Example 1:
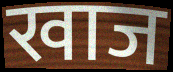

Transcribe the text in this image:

खाज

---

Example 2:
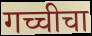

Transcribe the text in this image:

गच्चीचा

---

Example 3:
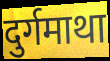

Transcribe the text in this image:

दुर्गमाथा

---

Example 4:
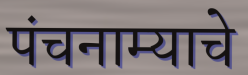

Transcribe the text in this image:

पंचनाम्याचे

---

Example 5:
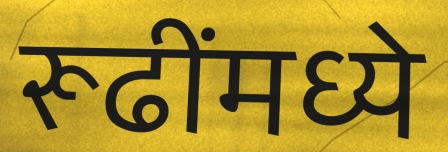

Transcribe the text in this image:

रूढींमध्ये